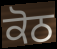
ਕੋਠ